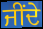
ਜੀਂਦੇ